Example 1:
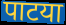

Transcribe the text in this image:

पाटया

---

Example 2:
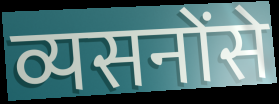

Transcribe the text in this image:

व्यसनोंसे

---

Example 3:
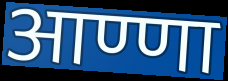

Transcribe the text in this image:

आण्णा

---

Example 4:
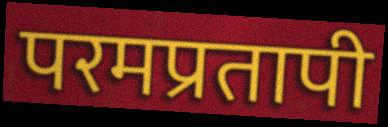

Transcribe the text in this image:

परमप्रतापी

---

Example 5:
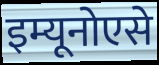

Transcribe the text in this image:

इम्यूनोएसे